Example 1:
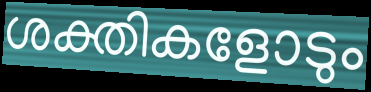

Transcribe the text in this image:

ശക്തികളോടും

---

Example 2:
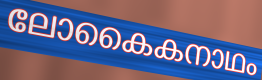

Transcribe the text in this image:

ലോകൈകനാഥം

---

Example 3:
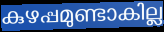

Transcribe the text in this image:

കുഴപ്പമുണ്ടാകില്ല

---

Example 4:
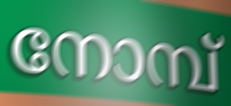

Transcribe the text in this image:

നോമ്പ്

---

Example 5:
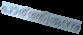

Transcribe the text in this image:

പാര്ത്തിരുന്നു